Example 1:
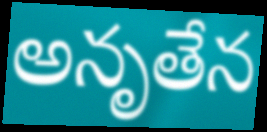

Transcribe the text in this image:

అనృతేన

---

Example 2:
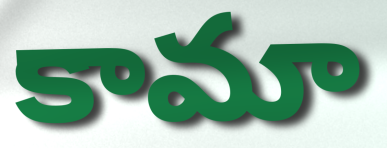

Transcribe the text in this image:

కామా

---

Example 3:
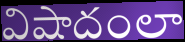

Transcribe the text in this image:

విషాదంలా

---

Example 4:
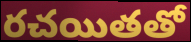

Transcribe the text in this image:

రచయితతో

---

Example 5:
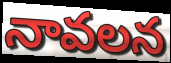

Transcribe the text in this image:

నావలన